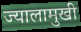
ज्यालामुखी